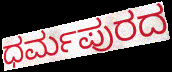
ಧರ್ಮಪುರದ